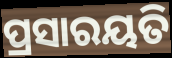
ପ୍ରସାରୟତି